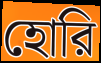
হোরি